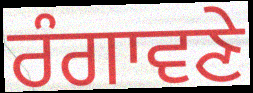
ਰੰਗਾਵਣੇ